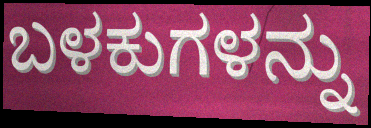
ಬಳಕುಗಳನ್ನು